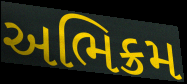
અભિક્રમ